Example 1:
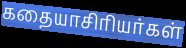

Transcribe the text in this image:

கதையாசிரியர்கள்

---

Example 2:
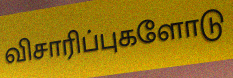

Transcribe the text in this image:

விசாரிப்புகளோடு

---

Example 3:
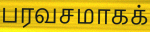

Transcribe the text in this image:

பரவசமாகக்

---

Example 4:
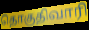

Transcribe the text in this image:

தொகுதிவாரி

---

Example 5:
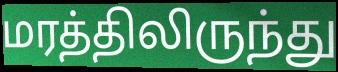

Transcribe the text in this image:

மரத்திலிருந்து